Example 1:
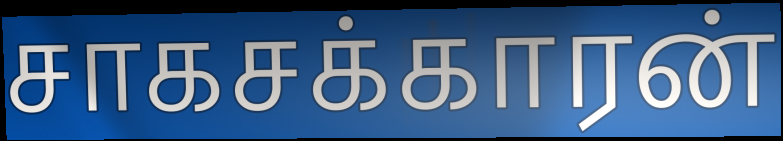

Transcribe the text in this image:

சாகசக்காரன்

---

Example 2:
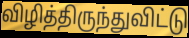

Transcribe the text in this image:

விழித்திருந்துவிட்டு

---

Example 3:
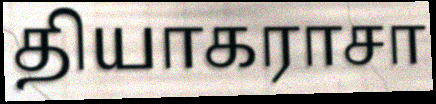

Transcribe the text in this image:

தியாகராசா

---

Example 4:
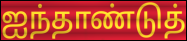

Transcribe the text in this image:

ஐந்தாண்டுத்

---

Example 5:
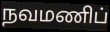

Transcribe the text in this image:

நவமணிப்